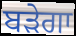
ਬੜੇਗਾ